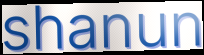
shanun